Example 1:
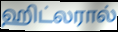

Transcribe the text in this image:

ஹிட்லரால்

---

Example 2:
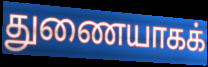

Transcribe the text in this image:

துணையாகக்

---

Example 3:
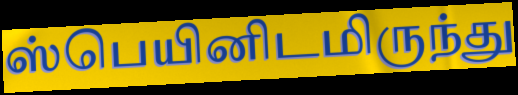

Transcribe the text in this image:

ஸ்பெயினிடமிருந்து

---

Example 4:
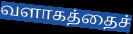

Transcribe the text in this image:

வளாகத்தைச்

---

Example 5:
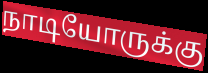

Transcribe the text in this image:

நாடியோருக்கு